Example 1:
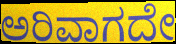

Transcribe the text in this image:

ಅರಿವಾಗದೇ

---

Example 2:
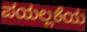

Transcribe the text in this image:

ಪಯಲ್ಲಕೆಯ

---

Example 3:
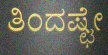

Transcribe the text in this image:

ತಿಂದಷ್ಟೇ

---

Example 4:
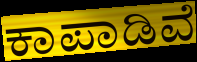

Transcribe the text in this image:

ಕಾಪಾಡಿವೆ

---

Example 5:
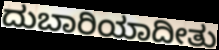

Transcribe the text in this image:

ದುಬಾರಿಯಾದೀತು